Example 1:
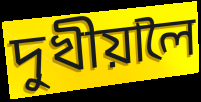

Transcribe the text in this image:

দুখীয়ালৈ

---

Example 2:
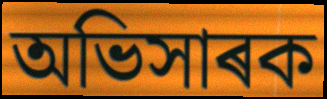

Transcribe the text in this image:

অভিসাৰক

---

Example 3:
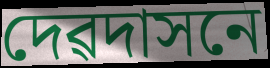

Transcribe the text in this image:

দেৱদাসনে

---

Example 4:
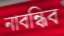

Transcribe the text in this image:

নাবন্ধিব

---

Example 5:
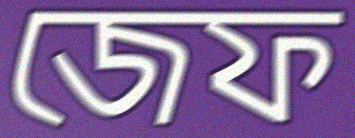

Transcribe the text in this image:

জেফ